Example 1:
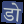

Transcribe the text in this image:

डो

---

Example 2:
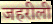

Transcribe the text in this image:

जहरीली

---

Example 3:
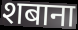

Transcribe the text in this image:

शबाना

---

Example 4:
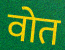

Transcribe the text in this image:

वोत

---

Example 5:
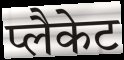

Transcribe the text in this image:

प्लैकेट